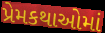
પ્રેમકથાઓમાં